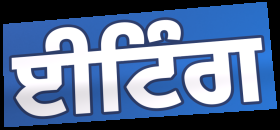
ਈਟਿੰਗ